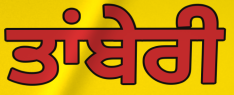
ਤਾਂਬੇਰੀ